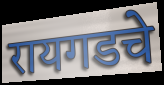
रायगडचे